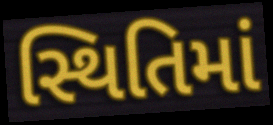
સ્થિતિમાં